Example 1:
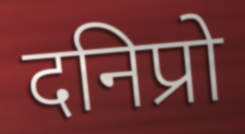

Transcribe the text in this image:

दनिप्रो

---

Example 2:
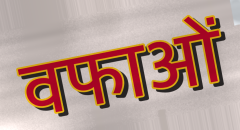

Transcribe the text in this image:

वफाओं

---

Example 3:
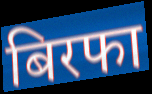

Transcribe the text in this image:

बिरफा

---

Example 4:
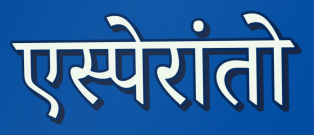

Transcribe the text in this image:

एस्पेरांतो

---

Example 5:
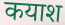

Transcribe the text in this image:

कयाश